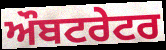
ਔਬਟਰੇਟਰ